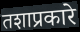
तशाप्रकारे